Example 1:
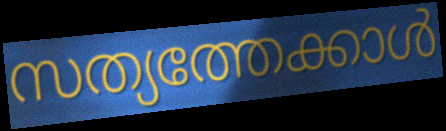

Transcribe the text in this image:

സത്യത്തേക്കാൾ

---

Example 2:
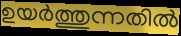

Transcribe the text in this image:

ഉയർത്തുന്നതിൽ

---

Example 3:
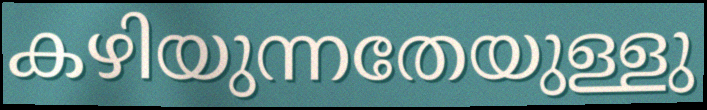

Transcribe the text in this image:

കഴിയുന്നതേയുള്ളു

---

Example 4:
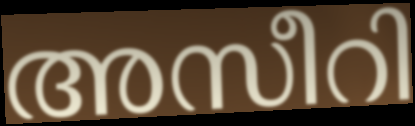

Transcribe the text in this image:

അസീറി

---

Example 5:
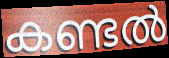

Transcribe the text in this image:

കണ്ടൽ